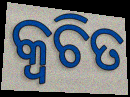
କ୍ବଚିତ